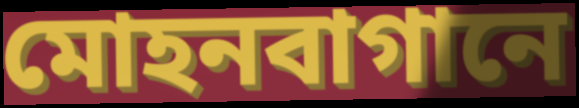
মোহনবাগানে